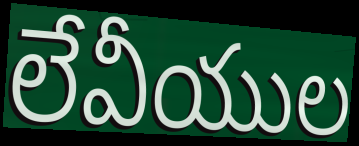
లేవీయుల